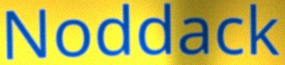
Noddack